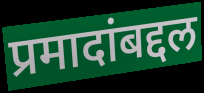
प्रमादांबद्दल